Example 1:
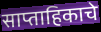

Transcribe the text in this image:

साप्ताहिकाचे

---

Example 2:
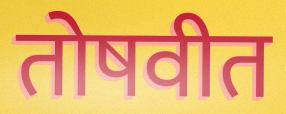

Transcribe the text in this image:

तोषवीत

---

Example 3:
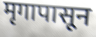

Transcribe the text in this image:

मृगापासून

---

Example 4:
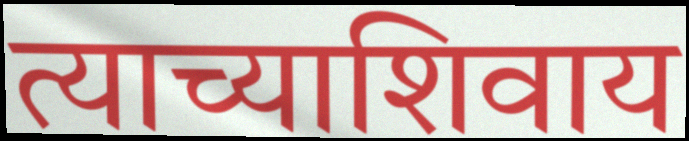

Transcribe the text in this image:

त्याच्याशिवाय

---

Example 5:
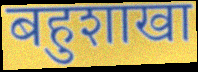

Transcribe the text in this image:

बहुशाखा